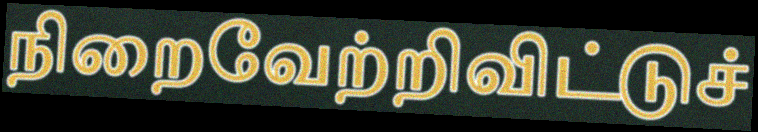
நிறைவேற்றிவிட்டுச்